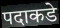
पदाकडे